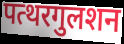
पत्थरगुलशन